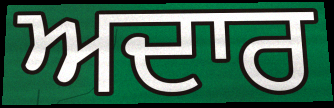
ਅਦਾਰ